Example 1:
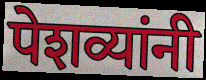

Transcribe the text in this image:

पेशव्यांनी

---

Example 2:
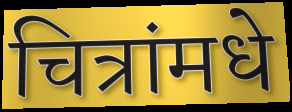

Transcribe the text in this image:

चित्रांमधे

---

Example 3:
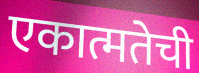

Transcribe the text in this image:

एकात्मतेची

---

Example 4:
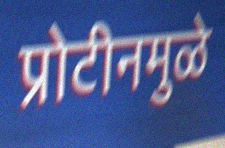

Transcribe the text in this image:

प्रोटीनमुळे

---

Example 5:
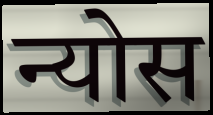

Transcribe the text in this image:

न्योस